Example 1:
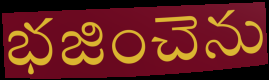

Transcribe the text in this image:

భజించెను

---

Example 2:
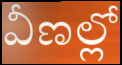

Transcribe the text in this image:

వీణల్లో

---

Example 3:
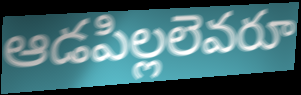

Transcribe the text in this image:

ఆడపిల్లలెవరూ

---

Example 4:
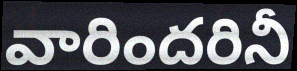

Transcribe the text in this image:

వారిందరినీ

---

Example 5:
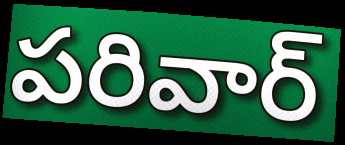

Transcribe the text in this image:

పరివార్